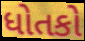
ધોતકો